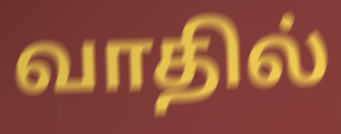
வாதில்